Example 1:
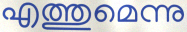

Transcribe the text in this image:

എത്തുമെന്നു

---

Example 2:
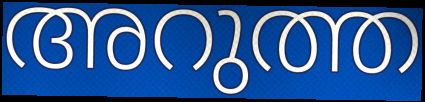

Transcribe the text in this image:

അറുത്ത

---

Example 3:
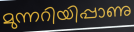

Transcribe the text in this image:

മുന്നറിയിപ്പാണു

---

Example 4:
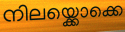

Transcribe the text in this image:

നിലയ്ക്കൊക്കെ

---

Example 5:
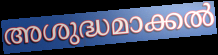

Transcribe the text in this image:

അശുദ്ധമാക്കൽ